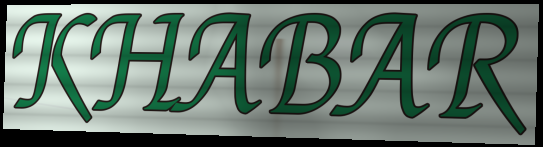
KHABAR